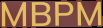
MBPM